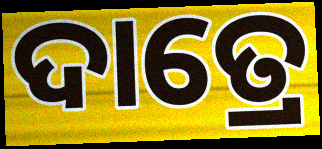
ଦାତ୍ରେ